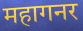
महागनर